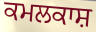
ਕਮਲਕਾਸ਼